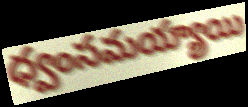
ధ్వంసమయ్యాయి